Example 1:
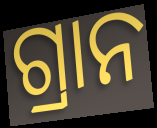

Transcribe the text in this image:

ଗ୍ରାନ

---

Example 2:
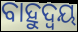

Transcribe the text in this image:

ବାହୁଦ୍ୱୟ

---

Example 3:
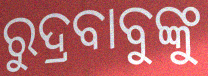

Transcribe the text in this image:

ରୁଦ୍ରବାବୁଙ୍କୁ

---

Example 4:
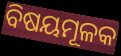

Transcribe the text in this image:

ବିଷୟମୂଳକ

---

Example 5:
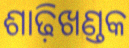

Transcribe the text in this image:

ଶାଢ଼ିଖଣ୍ଡକ